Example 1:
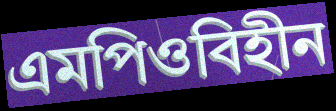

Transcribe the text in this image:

এমপিওবিহীন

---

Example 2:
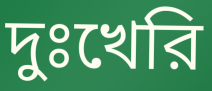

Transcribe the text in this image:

দুঃখেরি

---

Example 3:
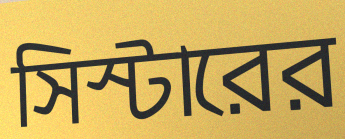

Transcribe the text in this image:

সিস্টারের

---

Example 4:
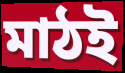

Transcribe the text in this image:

মাঠই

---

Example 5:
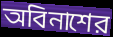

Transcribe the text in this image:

অবিনাশের